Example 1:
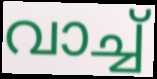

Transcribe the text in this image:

വാച്ച്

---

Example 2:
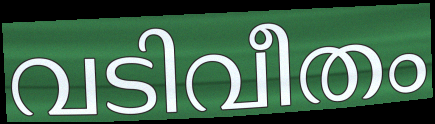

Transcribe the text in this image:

വടിവീതം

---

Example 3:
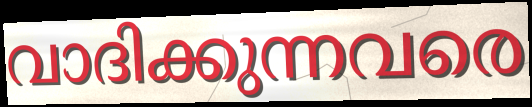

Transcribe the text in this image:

വാദിക്കുന്നവരെ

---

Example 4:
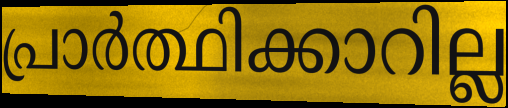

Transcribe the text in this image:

പ്രാർത്ഥിക്കാറില്ല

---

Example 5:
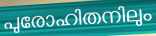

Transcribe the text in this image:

പുരോഹിതനിലും